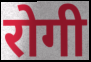
रोगी